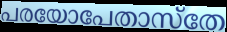
പരയോപേതാസ്തേ